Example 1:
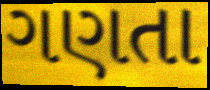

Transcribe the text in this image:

ગણતા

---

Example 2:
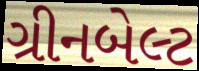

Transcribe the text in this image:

ગ્રીનબેલ્ટ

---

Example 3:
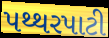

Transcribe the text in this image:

પથ્થરપાટી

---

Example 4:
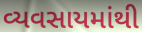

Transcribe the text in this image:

વ્યવસાયમાંથી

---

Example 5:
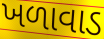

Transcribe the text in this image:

ખળાવાડ